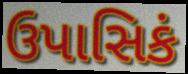
ઉપાસિકં